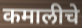
कमालीचे